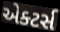
એક્ટર્સ